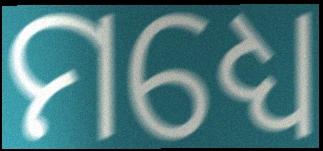
ମଧ୍ୟେ